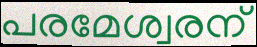
പരമേശ്വരന്